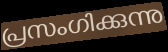
പ്രസംഗിക്കുന്നു